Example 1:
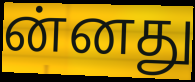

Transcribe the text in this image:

ன்னது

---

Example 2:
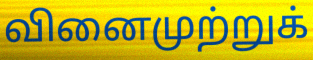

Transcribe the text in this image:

வினைமுற்றுக்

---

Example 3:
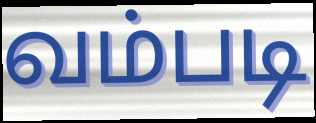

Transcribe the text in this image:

வம்படி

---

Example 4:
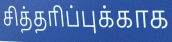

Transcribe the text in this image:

சித்தரிப்புக்காக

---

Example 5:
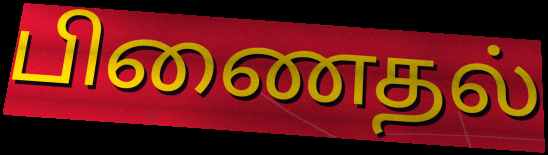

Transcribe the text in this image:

பிணைதல்